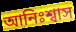
আনিঃশ্বাস